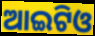
ଆଇଟିଓ